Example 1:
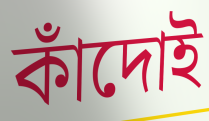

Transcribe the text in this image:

কাঁদোই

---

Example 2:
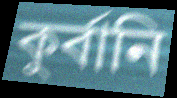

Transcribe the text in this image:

কুর্বানি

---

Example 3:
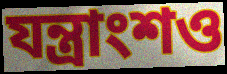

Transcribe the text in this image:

যন্ত্রাংশও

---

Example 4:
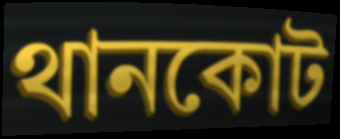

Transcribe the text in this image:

থানকোট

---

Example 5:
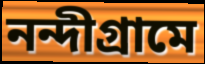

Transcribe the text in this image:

নন্দীগ্রামে